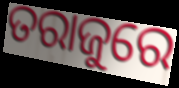
ତରାଜୁରେ